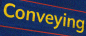
Conveying